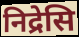
निद्रेसि